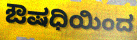
ಔಷಧಿಯಿಂದ